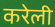
करेली